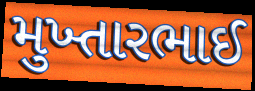
મુખ્તારભાઈ